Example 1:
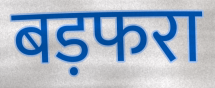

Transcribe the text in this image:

बड़फरा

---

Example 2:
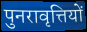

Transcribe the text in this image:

पुनरावृत्तियों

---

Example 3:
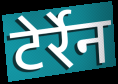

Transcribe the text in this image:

टेर्रेन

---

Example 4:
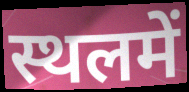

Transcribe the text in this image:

स्थलमें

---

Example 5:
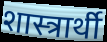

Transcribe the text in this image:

शास्त्रार्थी